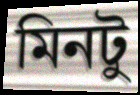
মিনটু